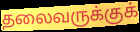
தலைவருக்குக்